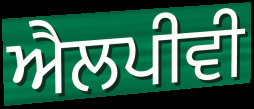
ਐਲਪੀਵੀ